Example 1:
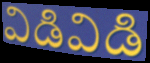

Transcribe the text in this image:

విడివిడి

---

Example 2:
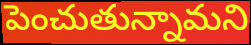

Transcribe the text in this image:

పెంచుతున్నామని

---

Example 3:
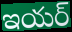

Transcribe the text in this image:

ఇయర్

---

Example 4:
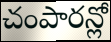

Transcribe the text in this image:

చంపారన్లో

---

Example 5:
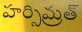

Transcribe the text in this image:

హర్సిమ్రత్